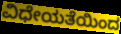
ವಿಧೇಯತೆಯಿಂದ